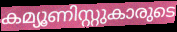
കമ്യൂണിസ്റ്റുകാരുടെ